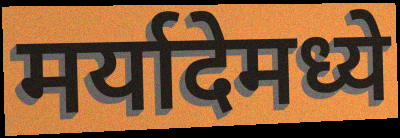
मर्यादेमध्ये